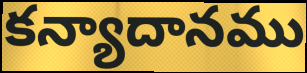
కన్యాదానము